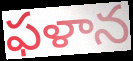
ఫళాన